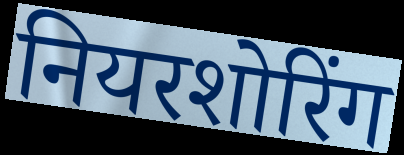
नियरशोरिंग